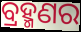
ବ୍ରହ୍ମଣର